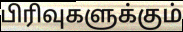
பிரிவுகளுக்கும்